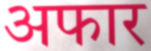
अफार